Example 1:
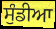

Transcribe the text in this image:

ਸੁੰਡੀਆ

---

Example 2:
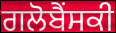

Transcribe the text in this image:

ਗਲੋਬੈਂਸਕੀ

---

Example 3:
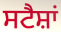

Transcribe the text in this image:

ਸਟੈਸ਼ਾਂ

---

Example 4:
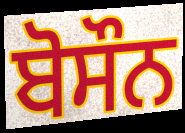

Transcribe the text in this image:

ਬੋਸੌਨ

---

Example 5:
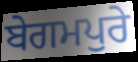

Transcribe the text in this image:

ਬੇਗਮਪੁਰੇ